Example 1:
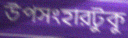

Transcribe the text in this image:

উপসংহারটুকু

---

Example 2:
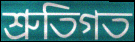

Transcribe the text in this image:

শ্রুতিগত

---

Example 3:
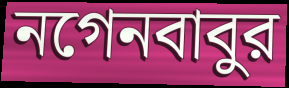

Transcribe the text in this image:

নগেনবাবুর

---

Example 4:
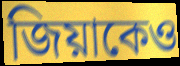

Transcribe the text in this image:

জিয়াকেও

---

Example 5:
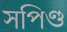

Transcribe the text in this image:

সপিণ্ড